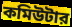
কমিউটার